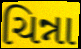
ચિન્ના